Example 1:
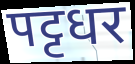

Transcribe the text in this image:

पट्टधर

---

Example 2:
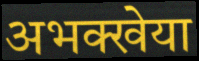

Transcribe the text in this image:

अभक्खेया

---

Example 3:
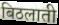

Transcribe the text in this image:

बिठलाती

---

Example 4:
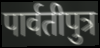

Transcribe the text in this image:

पार्वतीपुत्र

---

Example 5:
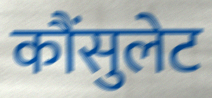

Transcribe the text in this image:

कौंसुलेट